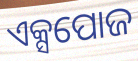
ଏକ୍ସପୋଜ